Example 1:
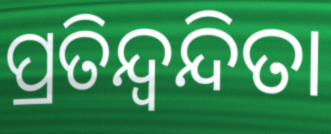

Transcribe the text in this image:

ପ୍ରତିନ୍ଦ୍ବନ୍ଦିତା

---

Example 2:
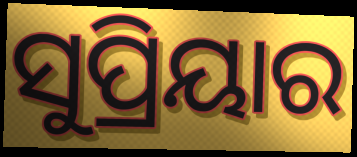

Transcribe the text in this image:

ସୁପ୍ରିୟାର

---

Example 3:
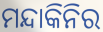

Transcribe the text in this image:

ମନ୍ଦାକିନିର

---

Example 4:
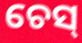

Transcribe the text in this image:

ଚେସ୍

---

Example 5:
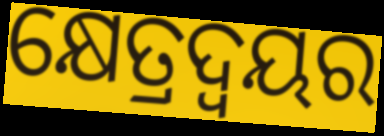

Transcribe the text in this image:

କ୍ଷେତ୍ରଦ୍ୱୟର